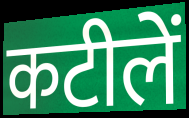
कटीलें